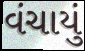
વંચાયું